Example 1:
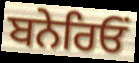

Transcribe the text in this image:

ਬਨੇਰਿਓਂ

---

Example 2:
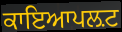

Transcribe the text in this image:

ਕਾਇਆਪਲ਼ਟ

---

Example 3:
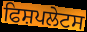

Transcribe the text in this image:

ਫਿਸ਼ਪਲੇਟਸ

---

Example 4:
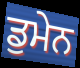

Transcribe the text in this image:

ਡੁਮੇਨ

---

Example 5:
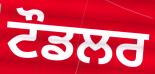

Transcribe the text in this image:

ਟੌਡਲਰ